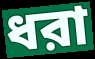
ধরা